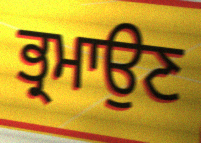
ਭ੍ਰਮਾਉਣ